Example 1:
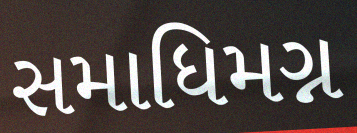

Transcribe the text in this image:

સમાધિમગ્ન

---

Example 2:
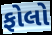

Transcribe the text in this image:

ફોલો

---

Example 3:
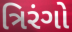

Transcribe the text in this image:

ત્રિરંગો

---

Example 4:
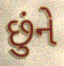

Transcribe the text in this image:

છુંને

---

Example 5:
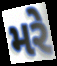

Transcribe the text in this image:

મરે